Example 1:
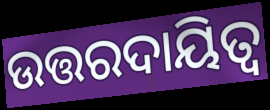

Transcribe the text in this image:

ଉତ୍ତରଦାୟିତ୍ବ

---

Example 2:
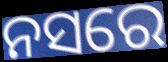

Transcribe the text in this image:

ନସରେ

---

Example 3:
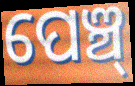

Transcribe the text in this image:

ପେଞ୍ଚ୍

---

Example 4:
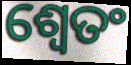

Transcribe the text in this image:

ଶ୍ଵେତଂ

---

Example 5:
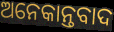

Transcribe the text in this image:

ଅନେକାନ୍ତବାଦ